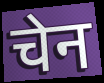
चेन